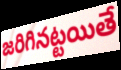
జరిగినట్టయితే